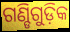
ଗଣ୍ଡିଗୁଡ଼ିକ